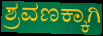
ಶ್ರವಣಕ್ಕಾಗಿ